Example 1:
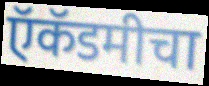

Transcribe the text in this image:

ऍकॅडमीचा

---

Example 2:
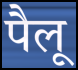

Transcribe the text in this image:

पैलू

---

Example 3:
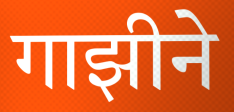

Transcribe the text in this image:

गाझीने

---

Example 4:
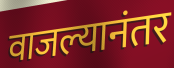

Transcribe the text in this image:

वाजल्यानंतर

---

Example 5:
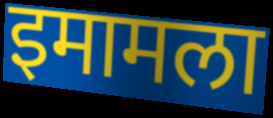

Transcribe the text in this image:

इमामला